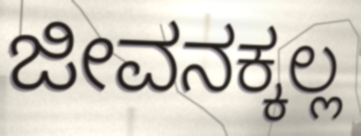
ಜೀವನಕ್ಕಲ್ಲ